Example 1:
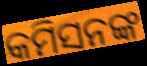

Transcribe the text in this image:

କମିସନଙ୍କ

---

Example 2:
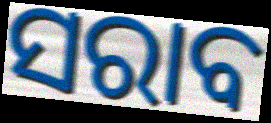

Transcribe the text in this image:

ସରାବ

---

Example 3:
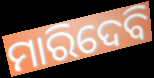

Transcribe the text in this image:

ମାରିଦେବି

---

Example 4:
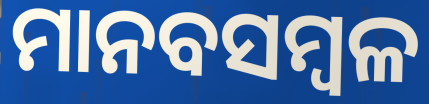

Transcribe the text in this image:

ମାନବସମ୍ବଳ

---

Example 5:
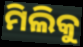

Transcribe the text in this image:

ମିଲିକୁ